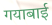
गयाबाई